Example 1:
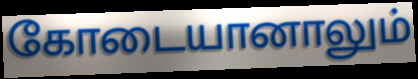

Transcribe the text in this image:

கோடையானாலும்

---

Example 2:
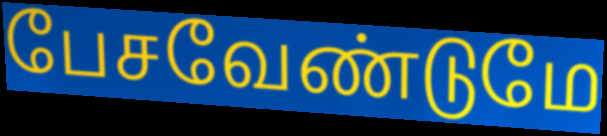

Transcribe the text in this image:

பேசவேண்டுமே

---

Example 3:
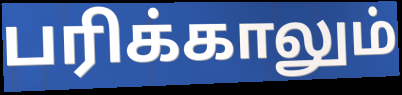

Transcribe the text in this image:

பரிக்காலும்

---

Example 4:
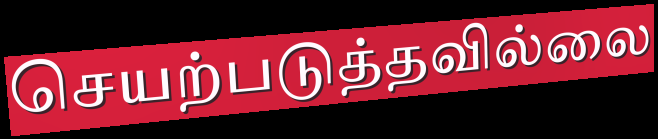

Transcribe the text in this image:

செயற்படுத்தவில்லை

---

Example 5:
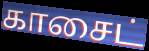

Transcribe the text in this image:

காசைட்